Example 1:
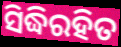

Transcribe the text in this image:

ସିଦ୍ଧିରହିତ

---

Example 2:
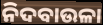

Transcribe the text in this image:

ନିଦବାଉଳା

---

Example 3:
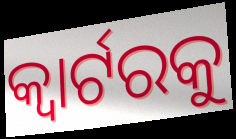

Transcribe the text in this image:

କ୍ୱାର୍ଟରକୁ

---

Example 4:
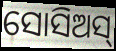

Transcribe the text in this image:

ସୋସିଅସ୍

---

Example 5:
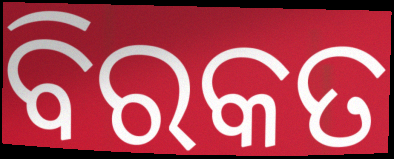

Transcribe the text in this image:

ବିରକତ